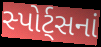
સ્પોર્ટ્સનાં